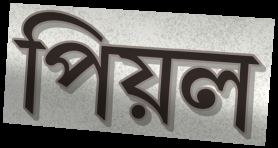
পিয়ল